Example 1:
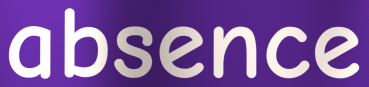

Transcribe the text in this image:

absence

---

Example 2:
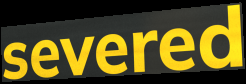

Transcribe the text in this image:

severed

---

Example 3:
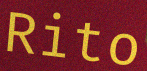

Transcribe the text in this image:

Rito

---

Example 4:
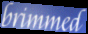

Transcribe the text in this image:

brimmed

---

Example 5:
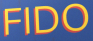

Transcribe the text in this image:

FIDO